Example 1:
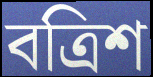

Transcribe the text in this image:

বত্ৰিশ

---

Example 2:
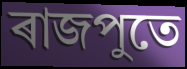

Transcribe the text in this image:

ৰাজপুতে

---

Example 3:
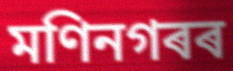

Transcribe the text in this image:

মণিনগৰৰ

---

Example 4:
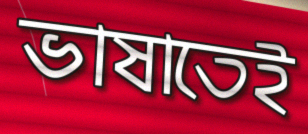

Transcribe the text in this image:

ভাষাতেই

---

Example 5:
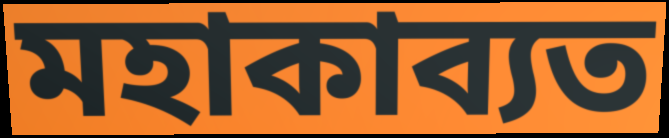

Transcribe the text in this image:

মহাকাব্যত